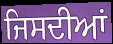
ਜਿਸਦੀਆਂ